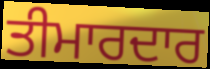
ਤੀਮਾਰਦਾਰ